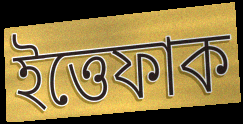
ইত্তেফাক